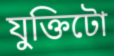
যুক্তিটো